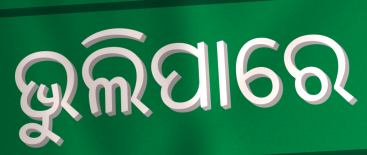
ଭୁଲିପାରେ